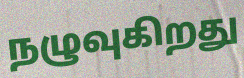
நழுவுகிறது